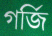
গৰ্জি